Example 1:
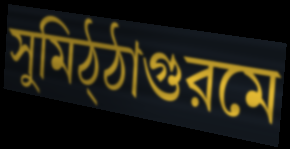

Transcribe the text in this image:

সুমিঠ্ঠাগুরমে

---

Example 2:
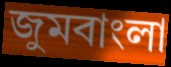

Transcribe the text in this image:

জুমবাংলা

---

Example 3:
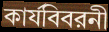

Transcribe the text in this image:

কার্যবিবরনী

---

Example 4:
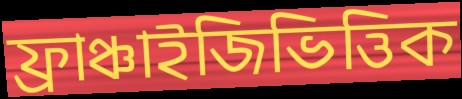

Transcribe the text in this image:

ফ্রাঞ্চাইজিভিত্তিক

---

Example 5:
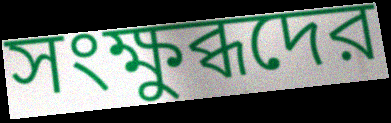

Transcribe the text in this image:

সংক্ষুব্ধদের